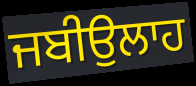
ਜਬੀਉਲਾਹ